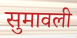
सुमावली